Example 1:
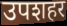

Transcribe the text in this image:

उपशहर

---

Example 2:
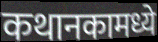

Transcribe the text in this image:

कथानकामध्ये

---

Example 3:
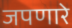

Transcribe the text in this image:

जपणारे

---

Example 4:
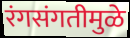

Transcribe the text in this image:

रंगसंगतीमुळे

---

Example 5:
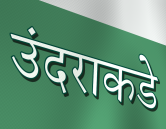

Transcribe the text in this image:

उंदराकडे